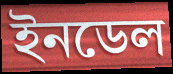
ইনডেল